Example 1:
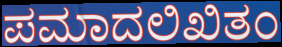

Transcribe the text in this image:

ಪಮಾದಲಿಖಿತಂ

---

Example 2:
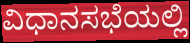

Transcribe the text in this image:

ವಿಧಾನಸಭೆಯಲ್ಲಿ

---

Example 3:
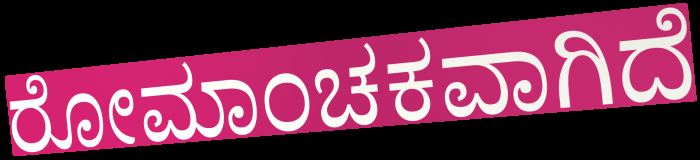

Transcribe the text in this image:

ರೋಮಾಂಚಕವಾಗಿದೆ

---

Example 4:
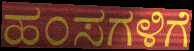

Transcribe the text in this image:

ಹಂಸಗಳಿಗೆ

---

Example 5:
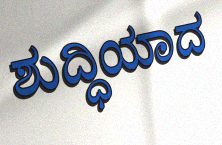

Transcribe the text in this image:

ಶುದ್ಧಿಯಾದ